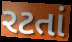
રટતાં